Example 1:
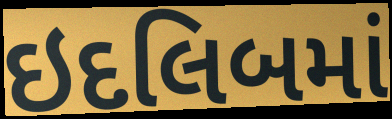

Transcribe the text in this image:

ઇદલિબમાં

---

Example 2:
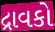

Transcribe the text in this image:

દ્રાવકો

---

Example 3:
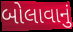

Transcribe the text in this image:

બોલાવાનું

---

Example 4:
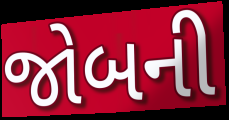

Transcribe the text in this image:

જોબની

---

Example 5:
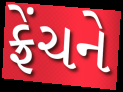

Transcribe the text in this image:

ફ્રેંચને